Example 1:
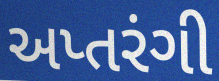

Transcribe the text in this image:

અપ્તરંગી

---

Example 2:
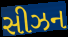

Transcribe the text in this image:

સીઝન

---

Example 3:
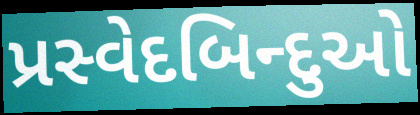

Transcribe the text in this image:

પ્રસ્વેદબિન્દુઓ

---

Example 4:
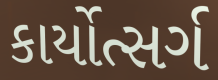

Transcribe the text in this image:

કાર્યોત્સર્ગ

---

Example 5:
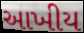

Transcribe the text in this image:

આખીય